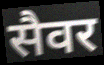
सैवर